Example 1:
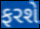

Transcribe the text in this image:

ફરશે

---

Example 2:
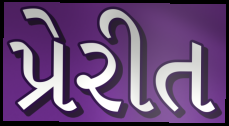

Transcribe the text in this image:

પ્રેરીત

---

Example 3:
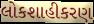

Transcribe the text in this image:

લોકશાહીકરણ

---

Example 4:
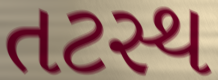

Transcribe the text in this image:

તટસ્થ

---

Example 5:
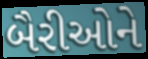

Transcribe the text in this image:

બૈરીઓને